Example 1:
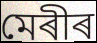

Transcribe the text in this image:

মেৰীৰ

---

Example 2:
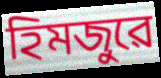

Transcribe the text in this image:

হিমজুৱে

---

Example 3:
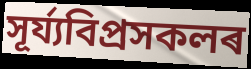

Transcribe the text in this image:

সূৰ্য্যবিপ্ৰসকলৰ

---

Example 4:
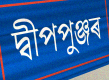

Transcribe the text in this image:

দ্বীপপুঞ্জৰ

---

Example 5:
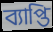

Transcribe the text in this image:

ব্যাপ্তি